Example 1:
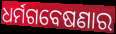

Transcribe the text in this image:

ଧର୍ମଗବେଷଣାର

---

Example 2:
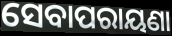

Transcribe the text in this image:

ସେବାପରାୟଣା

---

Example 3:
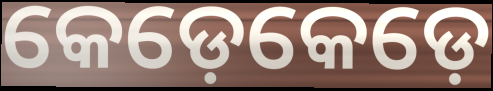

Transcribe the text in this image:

କେଡ଼େକେଡ଼େ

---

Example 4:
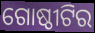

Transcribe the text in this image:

ଗୋଷ୍ଠୀଟିର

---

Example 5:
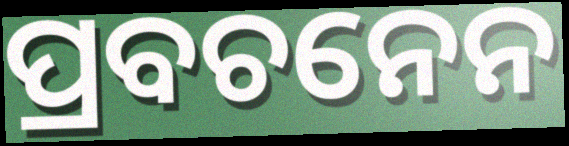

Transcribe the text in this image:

ପ୍ରବଚନେନ